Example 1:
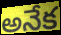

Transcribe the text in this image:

అనేక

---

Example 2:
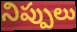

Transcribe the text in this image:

నిప్పులు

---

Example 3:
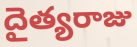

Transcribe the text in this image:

దైత్యరాజు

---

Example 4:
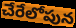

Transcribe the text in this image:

చేరేలోపున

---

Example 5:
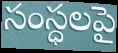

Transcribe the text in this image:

సంస్ధలపై